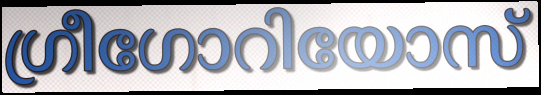
ഗ്രീഗോറിയോസ്